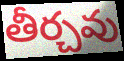
తీర్చవు